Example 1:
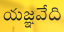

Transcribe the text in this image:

యజ్ఞవేది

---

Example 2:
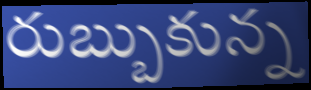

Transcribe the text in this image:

రుబ్బుకున్న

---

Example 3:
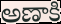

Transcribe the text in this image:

అణాకి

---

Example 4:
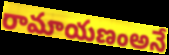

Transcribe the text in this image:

రామాయణంఅనే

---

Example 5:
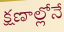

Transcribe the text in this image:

క్షణాల్లోనే